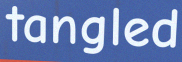
tangled